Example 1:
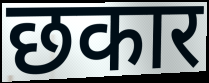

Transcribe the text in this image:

छकार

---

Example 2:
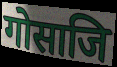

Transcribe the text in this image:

गोसाजि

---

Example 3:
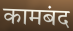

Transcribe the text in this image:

कामबंद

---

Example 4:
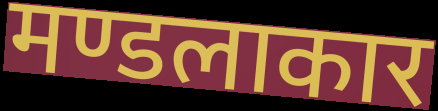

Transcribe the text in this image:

मण्डलाकार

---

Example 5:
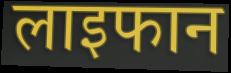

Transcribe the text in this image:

लाइफान